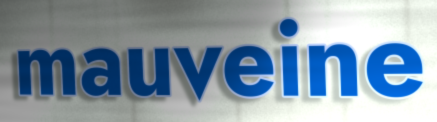
mauveine